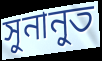
সুনানুত